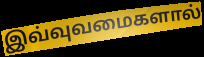
இவ்வுவமைகளால்